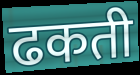
ढकती